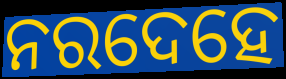
ନରଦେହେ